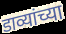
डाव्यांच्या